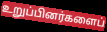
உறுப்பினர்களைப்